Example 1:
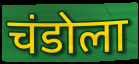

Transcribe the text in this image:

चंडोला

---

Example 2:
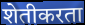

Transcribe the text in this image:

शेतीकरता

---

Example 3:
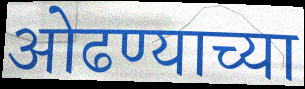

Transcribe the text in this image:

ओढण्याच्या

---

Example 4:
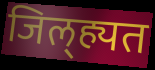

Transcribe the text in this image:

जिल्ह्यत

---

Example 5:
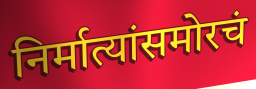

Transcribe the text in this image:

निर्मात्यांसमोरचं